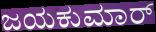
ಜಯಕುಮಾರ್